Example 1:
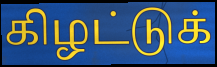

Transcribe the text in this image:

கிழட்டுக்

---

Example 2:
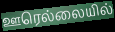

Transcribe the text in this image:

ஊரெல்லையில்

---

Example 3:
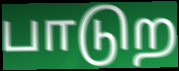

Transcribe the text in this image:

பாடுற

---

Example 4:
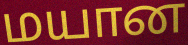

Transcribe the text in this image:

மயான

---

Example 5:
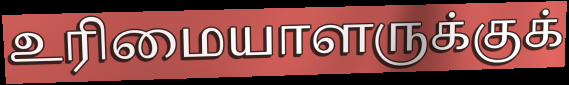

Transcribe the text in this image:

உரிமையாளருக்குக்